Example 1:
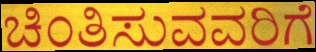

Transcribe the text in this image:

ಚಿಂತಿಸುವವರಿಗೆ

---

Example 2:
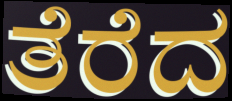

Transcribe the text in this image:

ತೆರೆದ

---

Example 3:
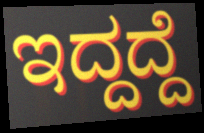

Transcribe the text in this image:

ಇದ್ದದ್ದೆ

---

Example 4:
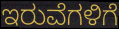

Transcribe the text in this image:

ಇರುವೆಗಳಿಗೆ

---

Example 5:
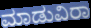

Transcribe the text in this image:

ಮಾಡುವಿರಾ